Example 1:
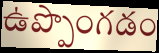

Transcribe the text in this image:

ఉప్పొంగడం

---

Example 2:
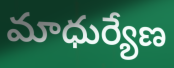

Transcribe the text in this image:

మాధుర్యేణ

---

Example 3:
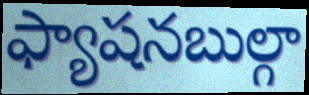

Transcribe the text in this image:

ఫ్యాషనబుల్గా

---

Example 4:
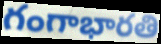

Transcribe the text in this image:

గంగాభారతి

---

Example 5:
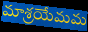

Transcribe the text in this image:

మాశ్రయేమమ